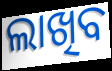
ଲାଖିବ